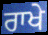
ਰਾਖੇ